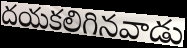
దయకలిగినవాడు